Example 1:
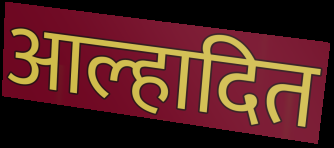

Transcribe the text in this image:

आल्हादित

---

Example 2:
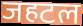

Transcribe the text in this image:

जहटल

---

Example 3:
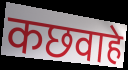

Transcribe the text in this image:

कछवाहे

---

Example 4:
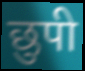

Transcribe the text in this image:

छुपी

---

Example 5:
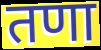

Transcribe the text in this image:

तणा